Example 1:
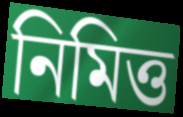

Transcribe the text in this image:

নিমিত্ত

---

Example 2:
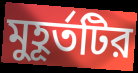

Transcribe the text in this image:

মুহূর্তটির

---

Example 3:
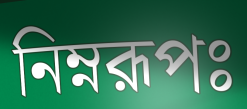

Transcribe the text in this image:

নিম্নরূপঃ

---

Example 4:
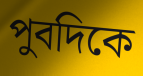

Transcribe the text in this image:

পুবদিকে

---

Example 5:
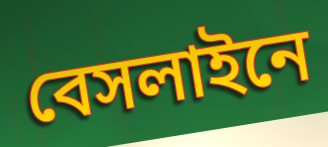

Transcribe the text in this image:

বেসলাইনে